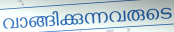
വാങ്ങിക്കുന്നവരുടെ